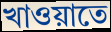
খাওয়াতে